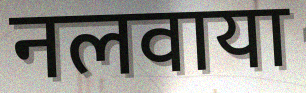
नलवाया